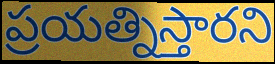
ప్రయత్నిస్తారని